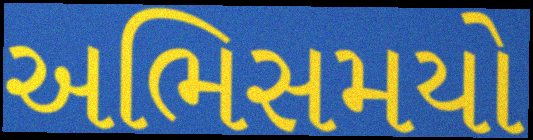
અભિસમયો